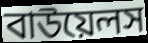
বাউয়েলস